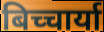
बिच्चार्या